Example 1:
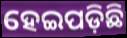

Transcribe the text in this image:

ହେଇପଡ଼ିଛି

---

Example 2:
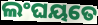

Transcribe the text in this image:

ଲଂଘୟତେ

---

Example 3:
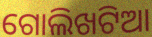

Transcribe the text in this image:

ଗୋଲିଖଟିଆ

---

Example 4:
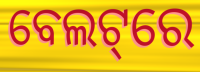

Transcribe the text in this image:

ବେଲଟ୍‌ରେ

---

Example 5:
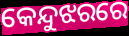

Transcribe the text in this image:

କେନ୍ଦୁଝରରେ